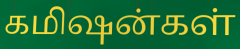
கமிஷன்கள்